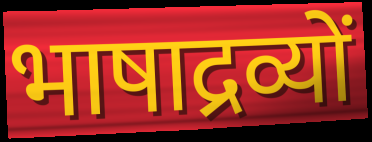
भाषाद्रव्यों